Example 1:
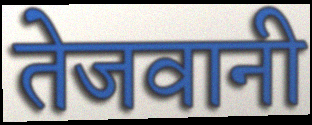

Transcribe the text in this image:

तेजवानी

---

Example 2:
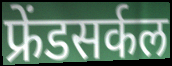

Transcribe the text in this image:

फ्रेंडसर्कल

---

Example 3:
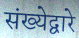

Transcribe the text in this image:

संख्येद्वारे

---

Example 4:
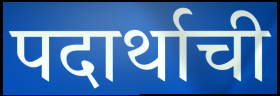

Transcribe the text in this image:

पदार्थाची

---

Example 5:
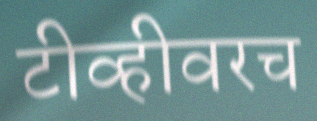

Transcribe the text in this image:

टीव्हीवरच